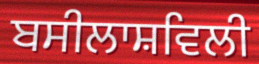
ਬਸੀਲਾਸ਼ਵਿਲੀ